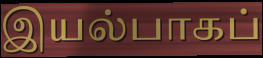
இயல்பாகப்